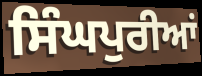
ਸਿੰਘਪੁਰੀਆਂ